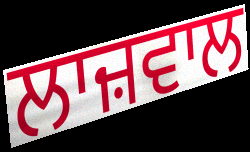
ਲਾਜ਼ਵਾਲ